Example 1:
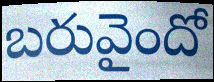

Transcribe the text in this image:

బరువైందో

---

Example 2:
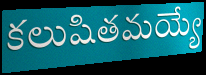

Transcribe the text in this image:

కలుషితమయ్యే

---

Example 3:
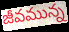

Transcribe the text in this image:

జీవమున్న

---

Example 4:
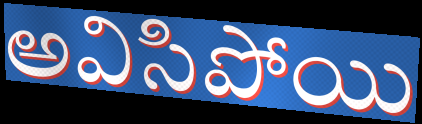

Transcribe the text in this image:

అవిసిపోయి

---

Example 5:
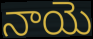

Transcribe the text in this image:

నాయె